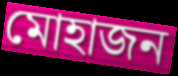
মোহাজন